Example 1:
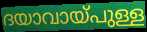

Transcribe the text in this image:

ദയാവായ്പുള്ള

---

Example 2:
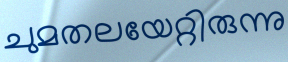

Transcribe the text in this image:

ചുമതലയേറ്റിരുന്നു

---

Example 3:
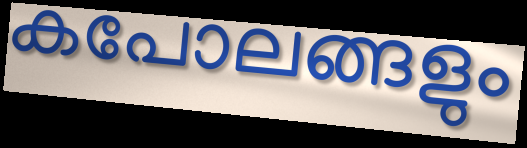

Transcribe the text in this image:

കപോലങ്ങളും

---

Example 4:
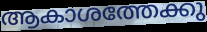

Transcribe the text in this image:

ആകാശത്തേക്കു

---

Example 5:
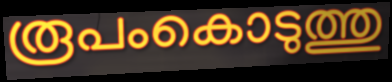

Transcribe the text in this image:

രൂപംകൊടുത്തു